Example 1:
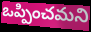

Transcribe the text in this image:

ఒప్పించమని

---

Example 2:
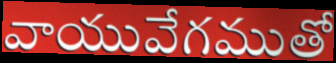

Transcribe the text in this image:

వాయువేగముతో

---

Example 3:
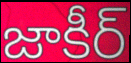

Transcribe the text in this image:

జాకీర్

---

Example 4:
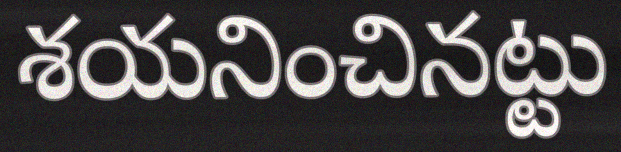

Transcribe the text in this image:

శయనించినట్టు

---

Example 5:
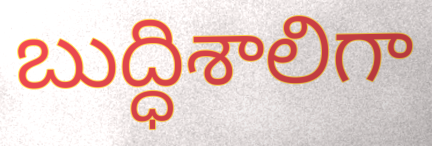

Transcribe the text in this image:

బుద్ధిశాలిగా